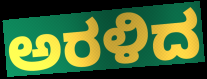
ಅರಳಿದ